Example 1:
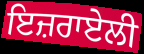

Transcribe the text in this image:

ਇਜ਼ਰਾਏਲੀ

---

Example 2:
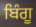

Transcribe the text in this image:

ਬਿੰਗੂ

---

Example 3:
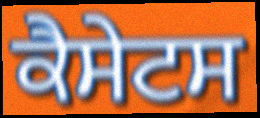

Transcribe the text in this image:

ਕੈਸੇਟਸ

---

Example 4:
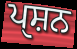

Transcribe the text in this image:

ਪੑਸ਼ਨ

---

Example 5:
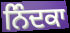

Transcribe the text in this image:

ਨਿੰਦਕਾ